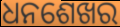
ଧନଶେଖର